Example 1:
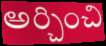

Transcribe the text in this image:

అర్చించి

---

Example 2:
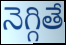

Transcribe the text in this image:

నెగ్గితే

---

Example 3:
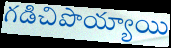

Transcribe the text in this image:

గడిచిపొయ్యాయి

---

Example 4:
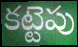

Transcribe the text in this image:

కట్టెపు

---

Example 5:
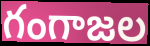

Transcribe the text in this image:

గంగాజల